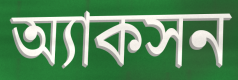
অ্যাকসন